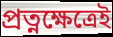
প্রত্নক্ষেত্রেই